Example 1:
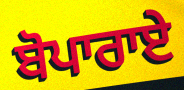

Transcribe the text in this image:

ਬੋਪਾਰਾਏ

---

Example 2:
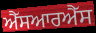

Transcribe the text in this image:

ਐੱਸਆਰਐੱਸ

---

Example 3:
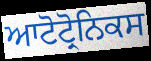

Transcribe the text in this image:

ਆਟੋਟ੍ਰੋਨਿਕਸ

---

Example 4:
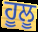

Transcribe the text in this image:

ਹੂਲੂ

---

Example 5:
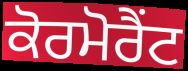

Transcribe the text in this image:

ਕੋਰਮੋਰੈਂਟ